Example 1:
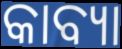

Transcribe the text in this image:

କାବ୍ୟା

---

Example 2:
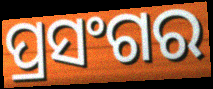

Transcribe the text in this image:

ପ୍ରସଂଗର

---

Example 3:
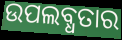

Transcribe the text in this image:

ଉପଲବ୍ଧତାର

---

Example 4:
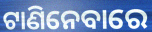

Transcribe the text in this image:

ଟାଣିନେବାରେ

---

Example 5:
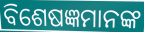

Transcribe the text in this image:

ବିଶେଷଜ୍ଞମାନଙ୍କ